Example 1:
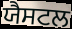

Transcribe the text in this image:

ਯੈਸਟਲ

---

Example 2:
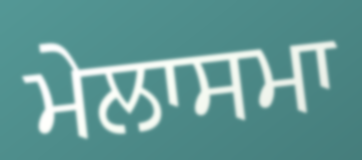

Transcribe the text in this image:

ਮੇਲਾਸਮਾ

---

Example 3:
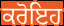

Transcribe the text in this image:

ਕਰੋਇਹ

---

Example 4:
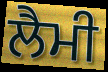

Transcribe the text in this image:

ਲੈਮੀ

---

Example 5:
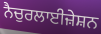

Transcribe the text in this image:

ਨੈਚੁਰਲਾਈਜ਼ੇਸ਼ਨ